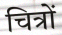
चित्रों